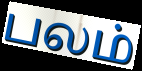
பலம்